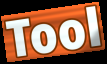
Tool